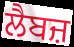
ਲੈਬਜ਼